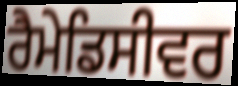
ਰੈਮੇਡਿਸੀਵਰ